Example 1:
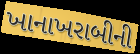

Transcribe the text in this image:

ખાનાખરાબીની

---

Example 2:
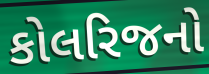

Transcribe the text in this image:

કોલરિજનો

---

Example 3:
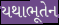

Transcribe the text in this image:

યથાભૂતેન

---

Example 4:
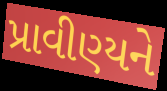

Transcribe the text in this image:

પ્રાવીણ્યને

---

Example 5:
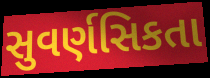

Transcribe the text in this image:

સુવર્ણસિકતા